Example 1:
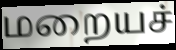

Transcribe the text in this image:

மறையச்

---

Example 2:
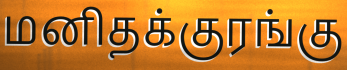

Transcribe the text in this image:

மனிதக்குரங்கு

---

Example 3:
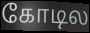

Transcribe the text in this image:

கோடில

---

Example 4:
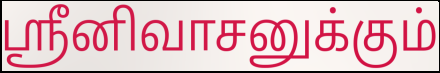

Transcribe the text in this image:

ஸ்ரீனிவாசனுக்கும்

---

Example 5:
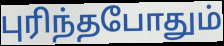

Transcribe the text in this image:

புரிந்தபோதும்